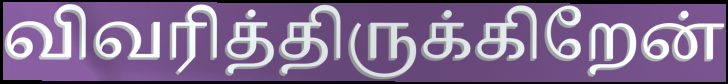
விவரித்திருக்கிறேன்